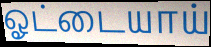
ஓட்டையாய்